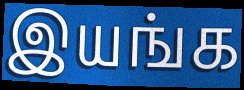
இயங்க